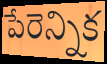
పేరెన్నిక